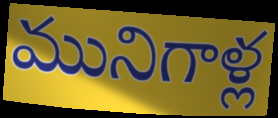
మునిగాళ్ల